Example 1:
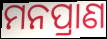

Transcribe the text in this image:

ମନପ୍ରାଣ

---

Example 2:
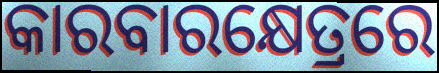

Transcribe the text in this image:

କାରବାରକ୍ଷେତ୍ରରେ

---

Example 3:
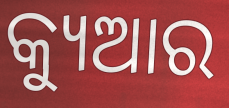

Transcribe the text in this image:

କ୍ୟୁଆର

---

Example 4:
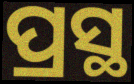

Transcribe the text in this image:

ପ୍ରସ୍ଥ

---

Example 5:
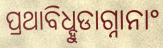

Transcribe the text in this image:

ପ୍ରଥାବିଧ୍ହୁଡାଗ୍ନାନାଂ